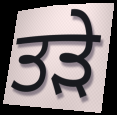
ਤੜੇ